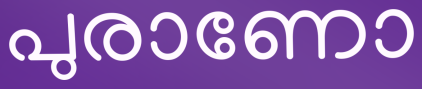
പുരാണോ